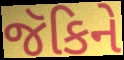
જૅકિને